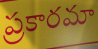
ప్రకారమా